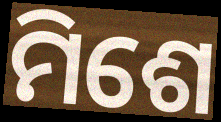
ମିଶେ